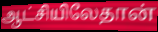
ஆட்சியிலேதான்